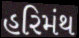
હરિમંથ